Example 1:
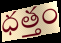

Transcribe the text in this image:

ధత్తం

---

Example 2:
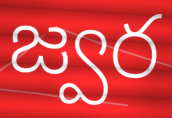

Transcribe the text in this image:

జ్వర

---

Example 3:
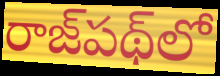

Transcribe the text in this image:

రాజ్‌పథ్‌లో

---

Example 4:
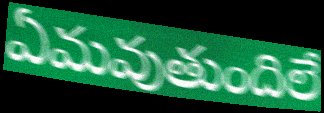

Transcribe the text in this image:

ఏమవుతుందిలే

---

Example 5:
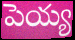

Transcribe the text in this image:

పెయ్య